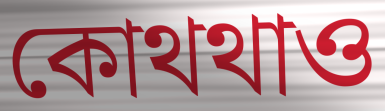
কোথথাও